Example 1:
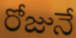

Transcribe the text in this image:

రోజునే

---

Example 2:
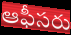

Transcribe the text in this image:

ఆఫీసరు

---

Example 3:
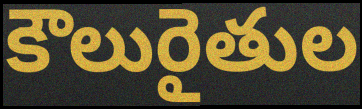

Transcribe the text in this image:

కౌలురైతుల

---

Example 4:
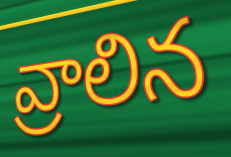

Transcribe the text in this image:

వ్రాలిన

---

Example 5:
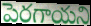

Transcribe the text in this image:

పెరగాయని